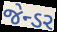
જેન્ડર